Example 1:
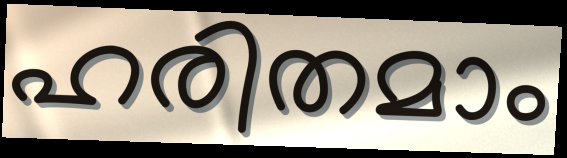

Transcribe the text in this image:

ഹരിതമാം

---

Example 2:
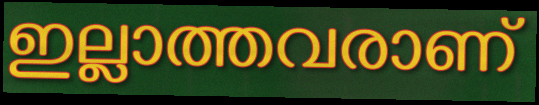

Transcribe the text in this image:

ഇല്ലാത്തവരാണ്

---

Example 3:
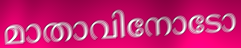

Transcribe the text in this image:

മാതാവിനോടോ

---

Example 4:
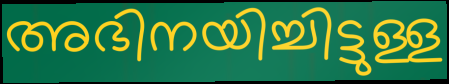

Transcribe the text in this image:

അഭിനയിച്ചിട്ടുള്ള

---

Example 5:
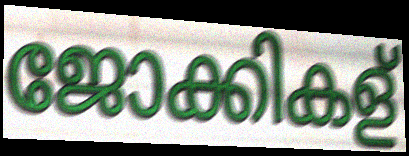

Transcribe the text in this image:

ജോക്കികള്